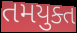
તમયુક્ત